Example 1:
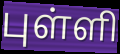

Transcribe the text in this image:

புள்ளி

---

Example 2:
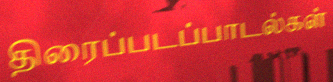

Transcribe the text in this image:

திரைப்படப்பாடல்கள்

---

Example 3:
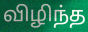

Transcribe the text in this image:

விழிந்த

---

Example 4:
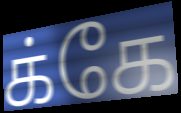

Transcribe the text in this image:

க்கே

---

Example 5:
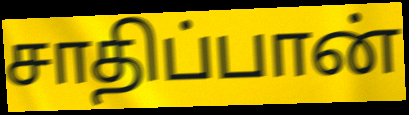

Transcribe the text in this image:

சாதிப்பான்